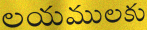
లయములకు